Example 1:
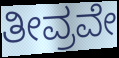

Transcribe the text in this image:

ತೀವ್ರವೇ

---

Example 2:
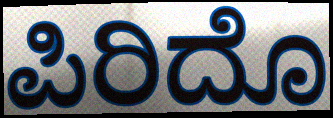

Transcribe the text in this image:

ಪಿರಿದೊ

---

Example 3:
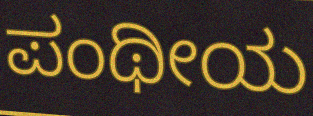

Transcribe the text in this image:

ಪಂಥೀಯ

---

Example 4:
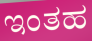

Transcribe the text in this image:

ಇಂತಹ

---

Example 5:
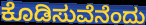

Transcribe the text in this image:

ಕೊಡಿಸುವೆನೆಂದು